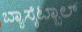
ಬ್ಯಾಸ್ಕೆಟ್ಬಾಲ್